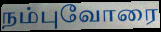
நம்புவோரை